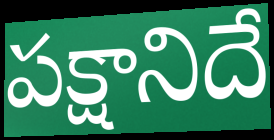
పక్షానిదే